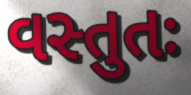
વસ્તુતઃ